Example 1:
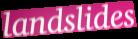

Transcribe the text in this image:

landslides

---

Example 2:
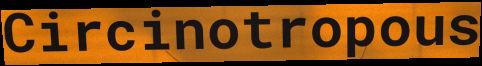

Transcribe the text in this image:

Circinotropous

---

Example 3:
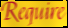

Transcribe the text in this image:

Require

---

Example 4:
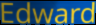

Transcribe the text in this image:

Edward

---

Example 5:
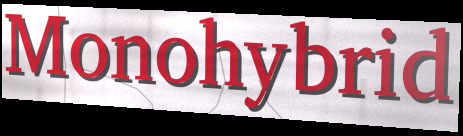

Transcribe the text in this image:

Monohybrid